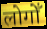
लोगोँ